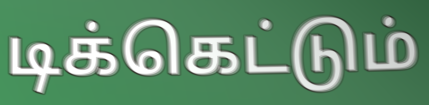
டிக்கெட்டும்